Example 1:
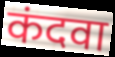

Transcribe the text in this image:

कंदवा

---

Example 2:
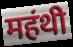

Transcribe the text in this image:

महंथी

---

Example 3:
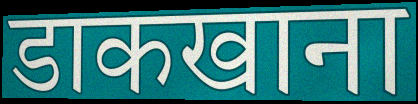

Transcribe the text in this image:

डाकखाना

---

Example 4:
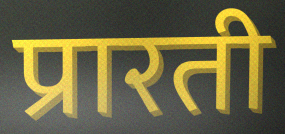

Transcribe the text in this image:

प्रारती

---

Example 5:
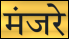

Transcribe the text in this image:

मंजरे